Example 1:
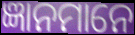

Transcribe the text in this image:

ଜ୍ଞାନମାନେ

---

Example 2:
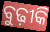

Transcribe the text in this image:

ବୁଢ଼ୀକି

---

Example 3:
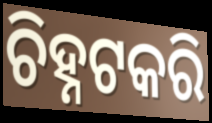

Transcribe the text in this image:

ଚିହ୍ନଟକରି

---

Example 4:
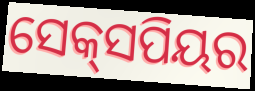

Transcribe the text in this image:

ସେକ୍‍ସପିୟର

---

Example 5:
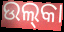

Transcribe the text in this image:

ଉଲ୍‌କା